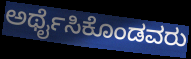
ಅರ್ಥೈಸಿಕೊಂಡವರು